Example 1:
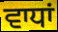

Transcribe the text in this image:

ਵਾਧਾਂ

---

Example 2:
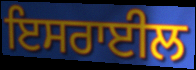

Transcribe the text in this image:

ਇਸਰਾਈਲ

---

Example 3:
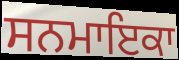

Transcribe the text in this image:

ਸਨਮਾਇਕਾ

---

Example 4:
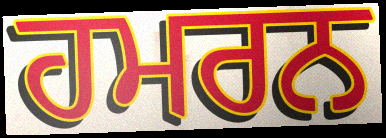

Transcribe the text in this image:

ਹਮਰਨ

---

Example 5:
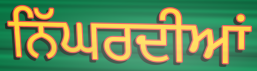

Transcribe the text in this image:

ਨਿੱਘਰਦੀਆਂ